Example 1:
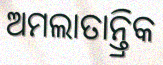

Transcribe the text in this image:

ଅମଲାତାନ୍ତ୍ରିକ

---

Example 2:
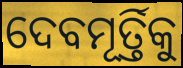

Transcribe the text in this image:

ଦେବମୂର୍ତ୍ତିକୁ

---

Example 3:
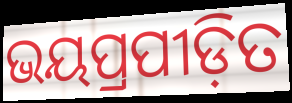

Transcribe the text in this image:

ଭୟପ୍ରପୀଡ଼ିତ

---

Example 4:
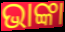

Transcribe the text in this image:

ଭାଙ୍କା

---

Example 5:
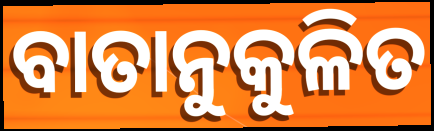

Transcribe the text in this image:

ବାତାନୁକୁଳିତ